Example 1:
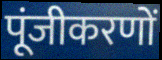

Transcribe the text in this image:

पूंजीकरणों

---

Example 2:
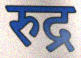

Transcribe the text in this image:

रुद्र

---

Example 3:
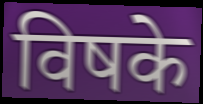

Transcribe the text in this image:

विषके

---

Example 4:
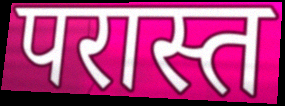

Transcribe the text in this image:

परास्त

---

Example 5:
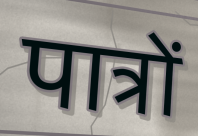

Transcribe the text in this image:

पात्रों